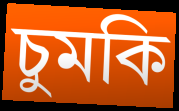
চুমকি